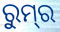
ରୁମ୍‌ର